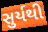
સુર્યથી